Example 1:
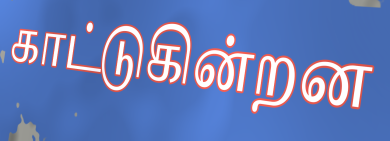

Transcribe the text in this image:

காட்டுகின்றன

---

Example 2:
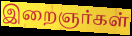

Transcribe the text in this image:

இறைஞர்கள்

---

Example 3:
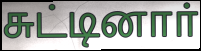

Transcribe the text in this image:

சுட்டினார்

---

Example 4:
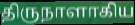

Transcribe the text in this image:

திருநாளாகிய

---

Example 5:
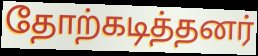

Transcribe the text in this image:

தோற்கடித்தனர்